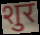
शुर